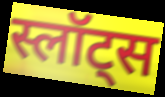
स्लॉट्स